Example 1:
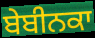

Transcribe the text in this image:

ਬੇਬੀਨਕਾ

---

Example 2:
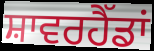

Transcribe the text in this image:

ਸ਼ਾਵਰਹੈੱਡਾਂ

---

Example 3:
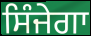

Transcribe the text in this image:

ਸਿੰਜੇਗਾ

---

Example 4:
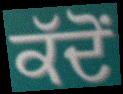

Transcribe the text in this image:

ਕੱਦੋਂ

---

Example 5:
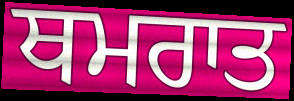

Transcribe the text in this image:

ਥਮਰਾਤ